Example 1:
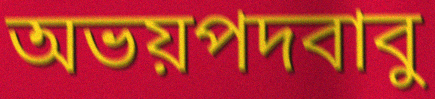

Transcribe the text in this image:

অভয়পদবাবু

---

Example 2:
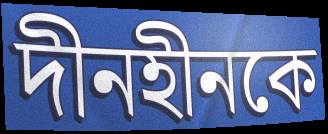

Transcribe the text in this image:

দীনহীনকে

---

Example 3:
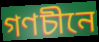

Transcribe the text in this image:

গণচীনে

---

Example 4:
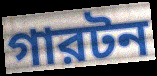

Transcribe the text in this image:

গারটন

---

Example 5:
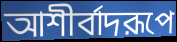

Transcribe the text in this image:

আশীর্বাদরূপে